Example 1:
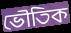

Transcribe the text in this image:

ভৌতিক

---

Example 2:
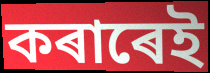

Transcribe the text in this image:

কৰাৰেই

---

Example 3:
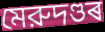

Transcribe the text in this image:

মেৰুদণ্ডৰ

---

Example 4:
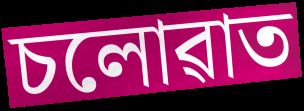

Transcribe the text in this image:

চলোৱাত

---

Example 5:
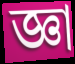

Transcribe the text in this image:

জ্ঞা